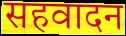
सहवादन